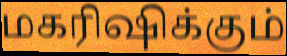
மகரிஷிக்கும்